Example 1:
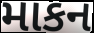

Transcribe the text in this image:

માકન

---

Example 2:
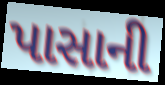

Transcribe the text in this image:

પાસાની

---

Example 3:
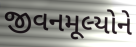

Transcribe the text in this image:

જીવનમૂલ્યોને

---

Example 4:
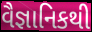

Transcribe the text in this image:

વૈજ્ઞાનિકથી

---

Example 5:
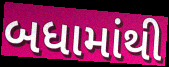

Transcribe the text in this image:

બધામાંથી